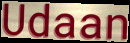
Udaan